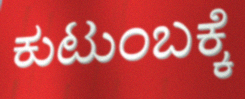
ಕುಟುಂಬಕ್ಕೆ